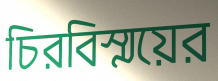
চিরবিস্ময়ের